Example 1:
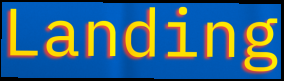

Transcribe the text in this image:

Landing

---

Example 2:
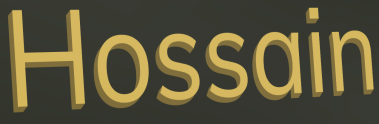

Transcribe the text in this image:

Hossain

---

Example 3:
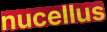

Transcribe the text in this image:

nucellus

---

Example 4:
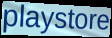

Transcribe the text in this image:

playstore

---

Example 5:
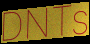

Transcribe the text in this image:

DNTs